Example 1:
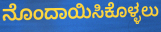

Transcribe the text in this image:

ನೊಂದಾಯಿಸಿಕೊಳ್ಳಲು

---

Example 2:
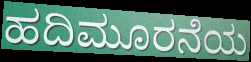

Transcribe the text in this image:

ಹದಿಮೂರನೆಯ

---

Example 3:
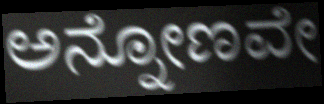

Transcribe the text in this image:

ಅನ್ನೋಣವೇ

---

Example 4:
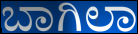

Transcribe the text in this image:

ಬಾಗಿಲಾ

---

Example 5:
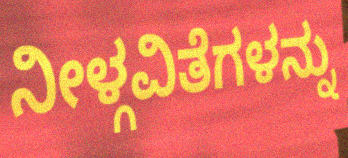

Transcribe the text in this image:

ನೀಳ್ಗವಿತೆಗಳನ್ನು